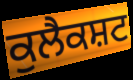
ਕੁਲੈਕਸ਼ਟ